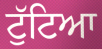
ਟੁੱਟਿਆ